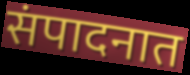
संपादनात